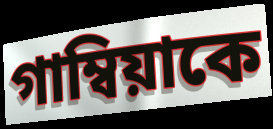
গাম্বিয়াকে